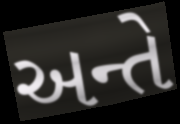
અન્તે